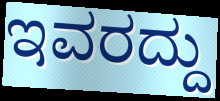
ಇವರದ್ದು